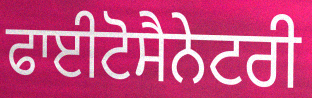
ਫਾਈਟੋਸੈਨੇਟਰੀ